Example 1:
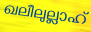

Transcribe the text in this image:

ഖലീലുല്ലാഹ്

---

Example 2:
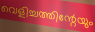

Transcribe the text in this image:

വെളിച്ചത്തിന്റേയും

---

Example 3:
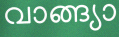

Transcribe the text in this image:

വാങ്ങ്യാ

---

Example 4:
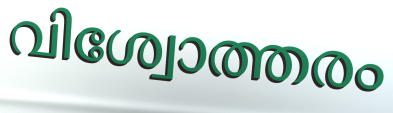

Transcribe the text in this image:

വിശ്വോത്തരം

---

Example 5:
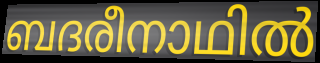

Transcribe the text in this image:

ബദരീനാഥിൽ